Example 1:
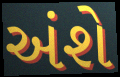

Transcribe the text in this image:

અંશે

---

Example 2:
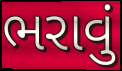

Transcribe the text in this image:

ભરાવું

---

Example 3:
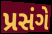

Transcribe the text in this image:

પ્રસંગે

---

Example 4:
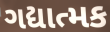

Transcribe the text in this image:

ગદ્યાત્મક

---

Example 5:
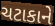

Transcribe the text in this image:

ચટાકાને